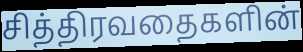
சித்திரவதைகளின்